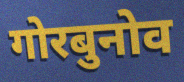
गोरबुनोव